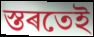
স্তৰতেই